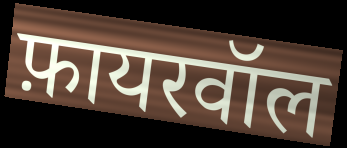
फ़ायरवॉल